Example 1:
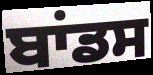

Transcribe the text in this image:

ਬਾਂਡਸ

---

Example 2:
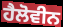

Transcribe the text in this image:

ਹੈਲੋਵੀਨ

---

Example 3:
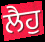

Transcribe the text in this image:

ਲੈਹੁ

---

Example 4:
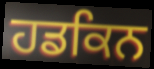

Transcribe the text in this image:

ਹਡਕਿਨ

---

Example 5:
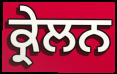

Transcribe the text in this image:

ਕ੍ਰੇਲਨ